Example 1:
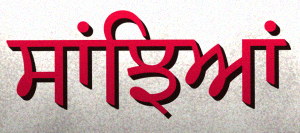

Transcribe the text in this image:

ਸਾਂਝਿਆਂ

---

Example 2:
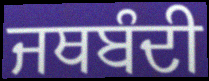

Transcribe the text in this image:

ਜਥਬੰਦੀ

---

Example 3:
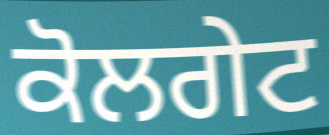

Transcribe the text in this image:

ਕੋਲਗੇਟ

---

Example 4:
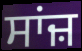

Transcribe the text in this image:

ਸਾਂਜ਼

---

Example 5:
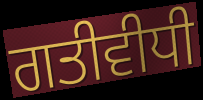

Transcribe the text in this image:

ਗਤੀਵੀਧੀ